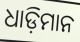
ଧାଡ଼ିମାନ